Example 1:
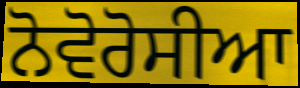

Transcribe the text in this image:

ਨੋਵੋਰੋਸੀਆ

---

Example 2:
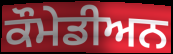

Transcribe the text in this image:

ਕੌਮੇਡੀਅਨ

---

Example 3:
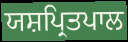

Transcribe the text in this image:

ਯਸ਼ਪ੍ਰਿਤਪਾਲ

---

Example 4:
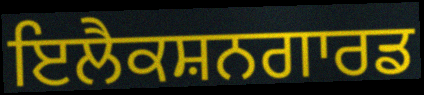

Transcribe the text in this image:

ਇਲੈਕਸ਼ਨਗਾਰਡ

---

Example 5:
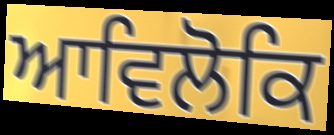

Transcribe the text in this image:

ਆਵਿਲੋਕਿ